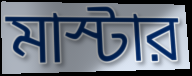
মাস্টার